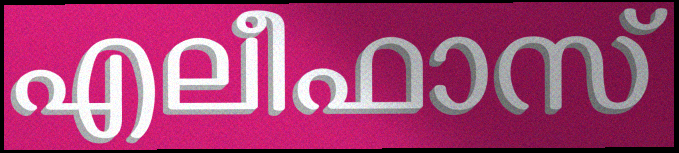
എലീഫാസ്